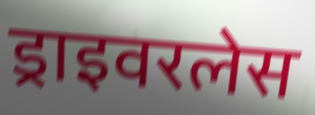
ड्राइवरलेस